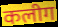
कलीग